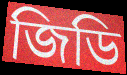
জিডি